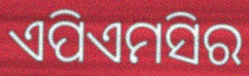
ଏପିଏମସିର